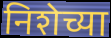
निशेच्या